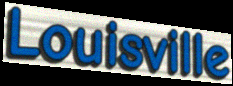
Louisville